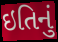
ઇતિનું